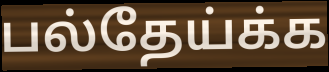
பல்தேய்க்க